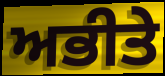
ਅਭੀਤੇ